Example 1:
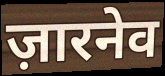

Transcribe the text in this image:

ज़ारनेव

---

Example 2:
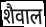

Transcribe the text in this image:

शैवाल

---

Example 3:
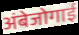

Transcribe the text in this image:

अंबेजोगाई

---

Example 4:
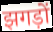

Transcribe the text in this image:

झगड़ों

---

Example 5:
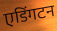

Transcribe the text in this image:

एडिंगटन